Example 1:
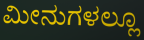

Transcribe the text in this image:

ಮೀನುಗಳಲ್ಲೂ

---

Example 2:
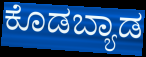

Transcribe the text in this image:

ಕೊಡಬ್ಯಾಡ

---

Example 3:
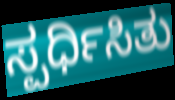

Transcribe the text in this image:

ಸ್ಪರ್ಧಿಸಿತು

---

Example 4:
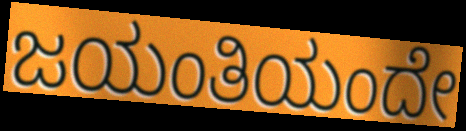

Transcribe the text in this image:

ಜಯಂತಿಯಂದೇ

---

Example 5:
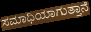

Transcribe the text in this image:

ಸಮಾಧಿಯಾಗುತ್ತಾನೆ